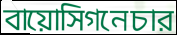
বায়োসিগনেচার